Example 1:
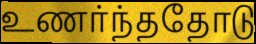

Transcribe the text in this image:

உணர்ந்ததோடு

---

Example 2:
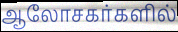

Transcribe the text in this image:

ஆலோசகர்களில்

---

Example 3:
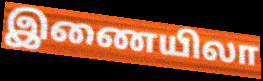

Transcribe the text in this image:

இணையிலா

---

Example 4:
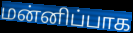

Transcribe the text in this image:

மன்னிப்பாக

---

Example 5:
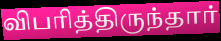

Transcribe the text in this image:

விபரித்திருந்தார்